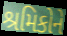
શ્રમિકોને